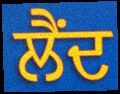
ਲੈਂਦ